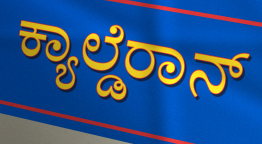
ಕ್ಯಾಲ್ಡೆರಾನ್